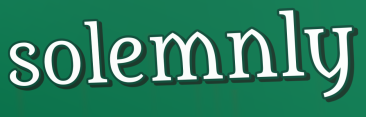
solemnly